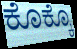
ಕೊಕ್ಕೊ